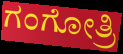
ಗಂಗೋತ್ರಿ